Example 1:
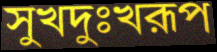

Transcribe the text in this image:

সুখদুঃখরূপ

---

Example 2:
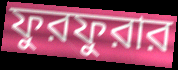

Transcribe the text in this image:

ফুরফুরার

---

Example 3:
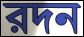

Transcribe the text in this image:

রদন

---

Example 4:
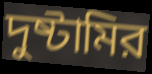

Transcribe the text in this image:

দুষ্টামির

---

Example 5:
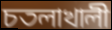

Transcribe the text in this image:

চতলাখালী